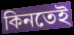
কিনতেই